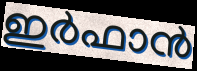
ഇർഫാൻ